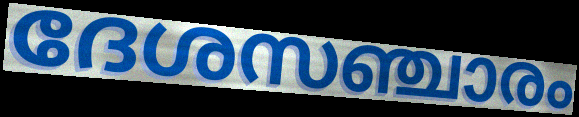
ദേശസഞ്ചാരം